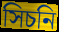
সিচনি